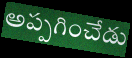
అప్పగించేడు